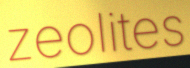
zeolites